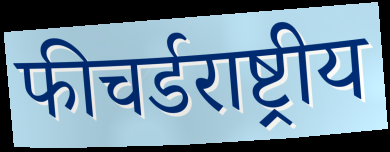
फीचर्डराष्ट्रीय